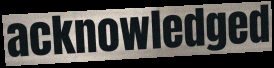
acknowledged